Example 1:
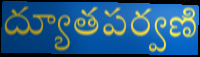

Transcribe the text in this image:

ద్యూతపర్వణి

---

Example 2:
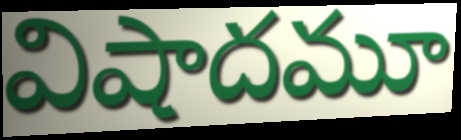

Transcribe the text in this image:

విషాదమూ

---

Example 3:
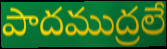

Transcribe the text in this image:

పాదముద్రలే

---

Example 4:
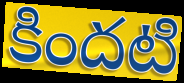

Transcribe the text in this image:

కిందటి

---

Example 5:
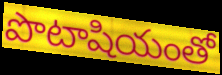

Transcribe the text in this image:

పొటాషియంతో